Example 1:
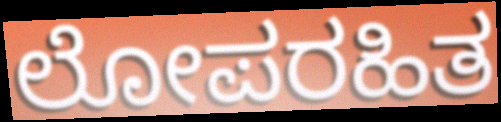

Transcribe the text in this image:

ಲೋಪರಹಿತ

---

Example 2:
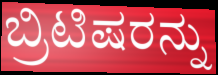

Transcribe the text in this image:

ಬ್ರಿಟಿಷರನ್ನು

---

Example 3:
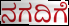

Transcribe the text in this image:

ನಗದಿಗೆ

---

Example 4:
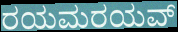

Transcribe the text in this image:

ರಯಮರಯವ್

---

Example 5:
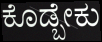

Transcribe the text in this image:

ಕೊಡ್ಬೇಕು